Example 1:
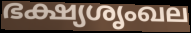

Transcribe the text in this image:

ഭക്ഷ്യശൃംഖല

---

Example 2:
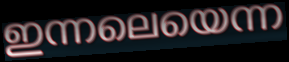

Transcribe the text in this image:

ഇന്നലെയെന്ന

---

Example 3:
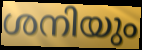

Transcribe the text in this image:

ശനിയും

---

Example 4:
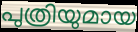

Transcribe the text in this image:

പുത്രിയുമായ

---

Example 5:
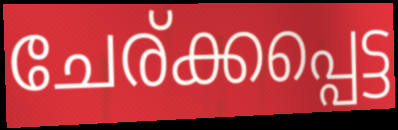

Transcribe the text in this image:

ചേര്ക്കപ്പെട്ട